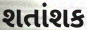
શતાંશક